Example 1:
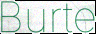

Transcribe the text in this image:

Burte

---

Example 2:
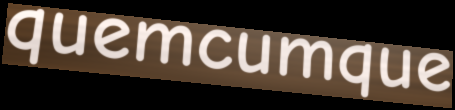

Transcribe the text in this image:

quemcumque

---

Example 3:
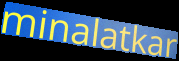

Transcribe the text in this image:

minalatkar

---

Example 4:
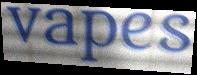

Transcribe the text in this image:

vapes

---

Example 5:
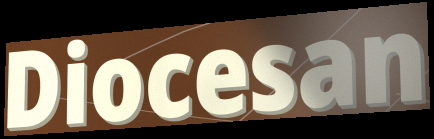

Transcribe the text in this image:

Diocesan